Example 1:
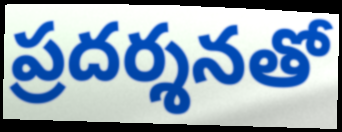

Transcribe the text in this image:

ప్రదర్శనతో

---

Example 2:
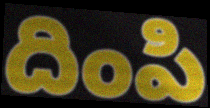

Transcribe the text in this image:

దింపి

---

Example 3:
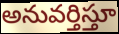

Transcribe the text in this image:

అనువర్తిస్తూ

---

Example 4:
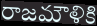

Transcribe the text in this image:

రాజమౌళికి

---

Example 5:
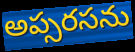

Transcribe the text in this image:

అప్సరసను